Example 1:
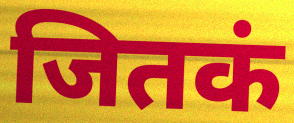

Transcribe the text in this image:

जितकं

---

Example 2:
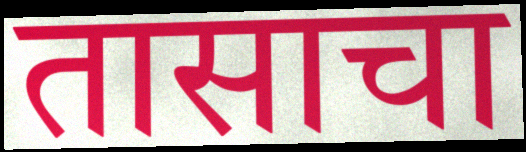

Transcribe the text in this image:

तासाचा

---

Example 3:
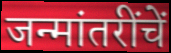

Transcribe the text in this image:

जन्मांतरींचें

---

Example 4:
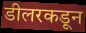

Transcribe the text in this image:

डीलरकडून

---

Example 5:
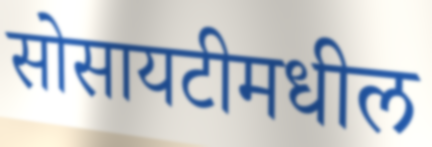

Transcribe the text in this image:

सोसायटीमधील